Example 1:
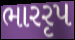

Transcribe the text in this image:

ભારરૃપ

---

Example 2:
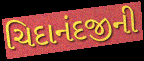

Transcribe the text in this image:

ચિદાનંદજીની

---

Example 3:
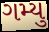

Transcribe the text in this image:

ગમ્યુ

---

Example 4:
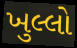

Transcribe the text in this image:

ખુલ્લો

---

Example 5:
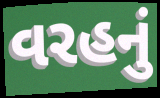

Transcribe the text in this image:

વરહનું